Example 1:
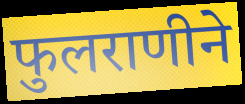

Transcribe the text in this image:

फुलराणीने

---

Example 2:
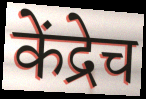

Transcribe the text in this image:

केंद्रेच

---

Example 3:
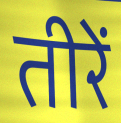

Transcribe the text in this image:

तीरें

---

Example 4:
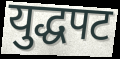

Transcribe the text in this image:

युद्धपट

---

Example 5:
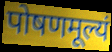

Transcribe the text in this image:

पोषणमूल्यं